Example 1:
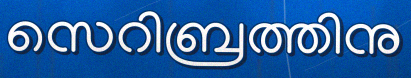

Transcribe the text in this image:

സെറിബ്രത്തിനു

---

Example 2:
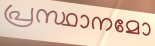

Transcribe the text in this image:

പ്രസ്ഥാനമോ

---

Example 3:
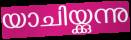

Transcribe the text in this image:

യാചിയ്ക്കുന്നു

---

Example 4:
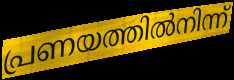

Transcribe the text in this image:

പ്രണയത്തിൽനിന്ന്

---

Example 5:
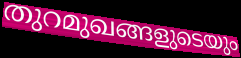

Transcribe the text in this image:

തുറമുഖങ്ങളുടെയും